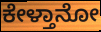
ಕೇಳ್ತಾನೋ